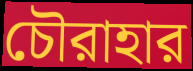
চৌরাহার